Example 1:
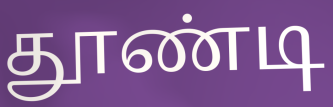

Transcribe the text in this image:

தூண்டி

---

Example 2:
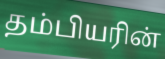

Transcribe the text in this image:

தம்பியரின்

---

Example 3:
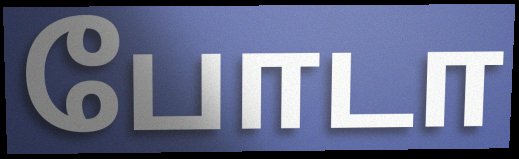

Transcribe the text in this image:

போடா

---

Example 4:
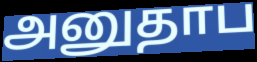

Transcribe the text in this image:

அனுதாப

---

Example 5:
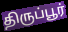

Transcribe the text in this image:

திருப்பூர்